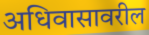
अधिवासावरील